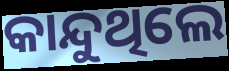
କାନ୍ଦୁଥିଲେ